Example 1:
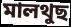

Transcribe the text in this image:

মালথুছ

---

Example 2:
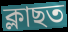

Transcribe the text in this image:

ক্লাছত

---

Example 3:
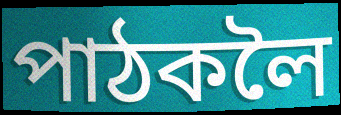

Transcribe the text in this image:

পাঠকলৈ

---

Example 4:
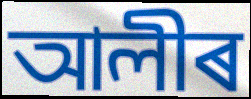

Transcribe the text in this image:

আলীৰ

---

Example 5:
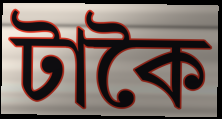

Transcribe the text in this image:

টাকৈ